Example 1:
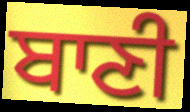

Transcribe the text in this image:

ਬਾਣੀ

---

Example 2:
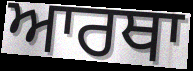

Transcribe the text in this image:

ਆਰਥਾ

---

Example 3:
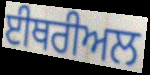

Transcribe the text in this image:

ਈਥਰੀਅਲ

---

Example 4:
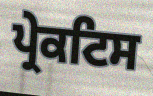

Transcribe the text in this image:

ਪ੍ਰੇਕਟਿਸ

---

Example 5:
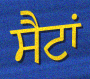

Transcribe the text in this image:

ਸੈਟਾਂ